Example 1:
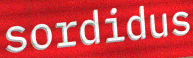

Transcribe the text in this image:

sordidus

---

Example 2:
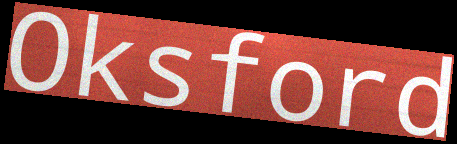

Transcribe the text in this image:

Oksford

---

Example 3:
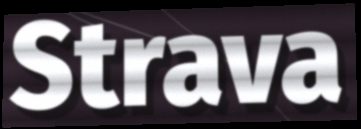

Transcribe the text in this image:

Strava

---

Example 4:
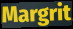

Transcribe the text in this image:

Margrit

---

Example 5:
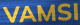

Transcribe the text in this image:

VAMSI